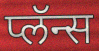
प्लॅन्स